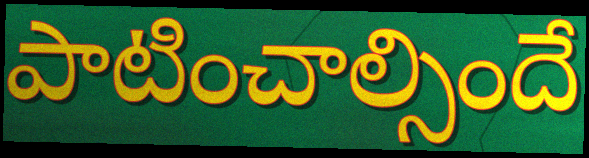
పాటించాల్సిందే